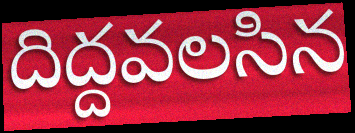
దిద్దవలసిన